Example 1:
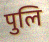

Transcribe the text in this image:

पुलि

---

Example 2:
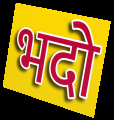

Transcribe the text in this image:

भदो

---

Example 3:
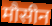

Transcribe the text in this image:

मौसीन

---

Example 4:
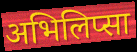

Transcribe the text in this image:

अभिलिप्सा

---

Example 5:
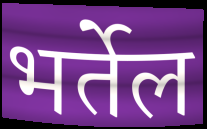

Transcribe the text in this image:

भर्तेल